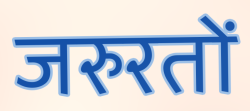
जरुरतों